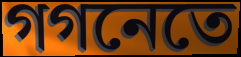
গগনেতে